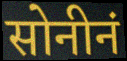
सोनीनं